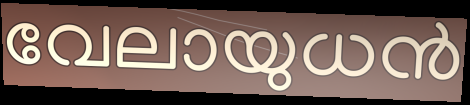
വേലായുധൻ